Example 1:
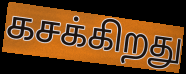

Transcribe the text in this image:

கசக்கிறது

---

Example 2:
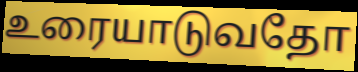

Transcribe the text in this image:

உரையாடுவதோ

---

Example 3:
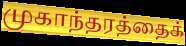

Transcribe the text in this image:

முகாந்தரத்தைக்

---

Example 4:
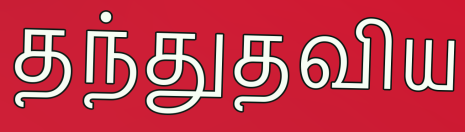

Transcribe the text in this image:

தந்துதவிய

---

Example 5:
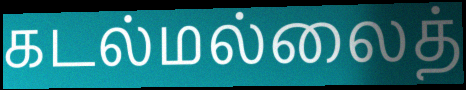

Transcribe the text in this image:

கடல்மல்லைத்